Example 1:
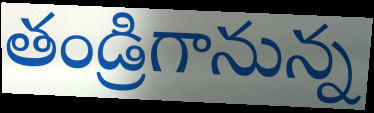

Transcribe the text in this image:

తండ్రిగానున్న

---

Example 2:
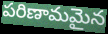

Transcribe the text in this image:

పరిణామమైన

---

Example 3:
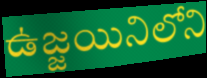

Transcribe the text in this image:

ఉజ్జయినిలోని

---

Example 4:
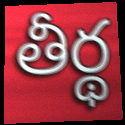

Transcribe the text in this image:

తీర్థ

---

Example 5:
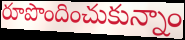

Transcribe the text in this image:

రూపొందించుకున్నాం